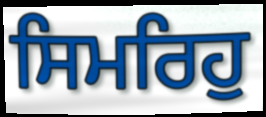
ਸਿਮਰਿਹੁ